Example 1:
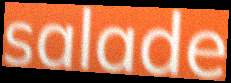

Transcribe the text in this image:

salade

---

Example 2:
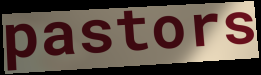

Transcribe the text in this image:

pastors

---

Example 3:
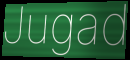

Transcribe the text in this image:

Jugad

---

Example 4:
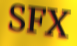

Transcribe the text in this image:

SFX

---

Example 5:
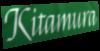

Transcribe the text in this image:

Kitamura